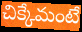
చిక్కేమంటే